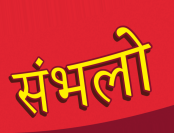
संभलो